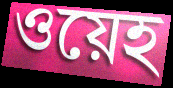
ওয়েহ